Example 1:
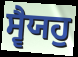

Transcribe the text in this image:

ਸ੍ਵੈਯਹੁ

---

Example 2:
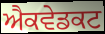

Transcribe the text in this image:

ਐਕਵੇਡਕਟ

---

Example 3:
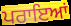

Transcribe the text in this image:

ਪਰਾਇਆਂ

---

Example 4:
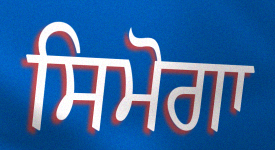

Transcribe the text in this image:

ਸਿਮੋਗਾ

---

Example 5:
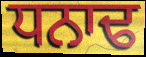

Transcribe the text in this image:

ਧਨਾਢ